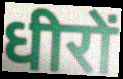
धीरों